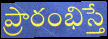
ప్రారంభిస్తే